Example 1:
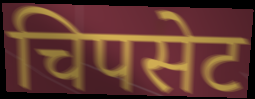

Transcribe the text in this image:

चिपसेट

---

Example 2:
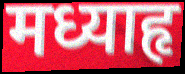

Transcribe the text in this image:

मध्याहृ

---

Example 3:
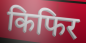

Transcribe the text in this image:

किफिर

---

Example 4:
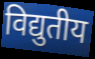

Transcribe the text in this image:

विद्युतीय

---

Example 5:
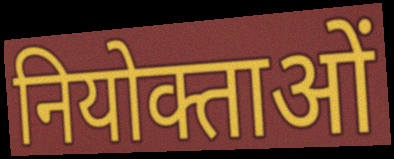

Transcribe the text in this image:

नियोक्ताओं